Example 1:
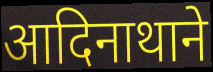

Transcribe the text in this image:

आदिनाथाने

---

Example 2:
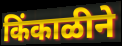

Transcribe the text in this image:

किंकाळीने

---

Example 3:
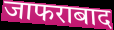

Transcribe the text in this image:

जाफराबाद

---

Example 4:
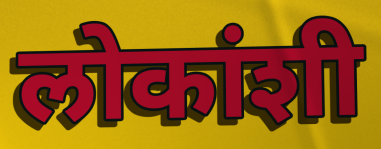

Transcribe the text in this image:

लोकांशी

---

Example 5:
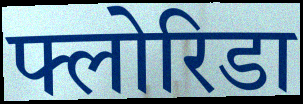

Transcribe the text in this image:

फ्लोरिडा